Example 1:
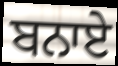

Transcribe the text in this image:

ਬਨਾਏ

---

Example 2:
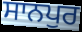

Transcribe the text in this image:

ਸਾਨਪੁਰ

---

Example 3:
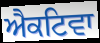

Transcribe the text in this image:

ਐਕਟਿਵਾ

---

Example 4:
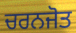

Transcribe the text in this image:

ਚਰਨਜੋਤ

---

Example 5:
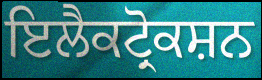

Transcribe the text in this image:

ਇਲੈਕਟ੍ਰੋਕਸ਼ਨ